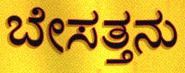
ಬೇಸತ್ತನು